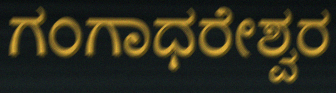
ಗಂಗಾಧರೇಶ್ವರ